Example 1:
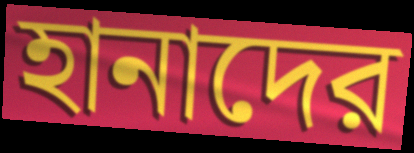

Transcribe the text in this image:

হানাদের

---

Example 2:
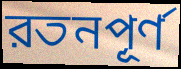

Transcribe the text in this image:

রতনপূর্ণ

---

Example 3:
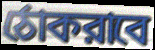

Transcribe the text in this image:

ঠোকরাবে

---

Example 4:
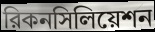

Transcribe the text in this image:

রিকনসিলিয়েশন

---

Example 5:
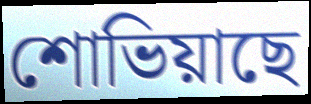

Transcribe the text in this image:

শোভিয়াছে